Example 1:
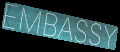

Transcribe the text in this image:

EMBASSY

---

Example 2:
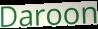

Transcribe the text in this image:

Daroon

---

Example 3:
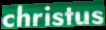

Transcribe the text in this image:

christus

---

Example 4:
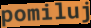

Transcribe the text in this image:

pomiluj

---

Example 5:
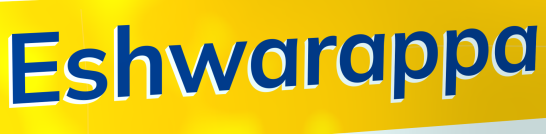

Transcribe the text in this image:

Eshwarappa